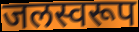
जलस्वरूप